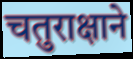
चतुराक्षाने